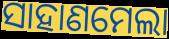
ସାହାଣମେଲା